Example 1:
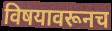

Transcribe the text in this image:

विषयावरूनच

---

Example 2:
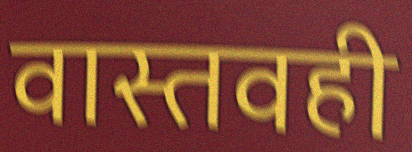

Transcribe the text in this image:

वास्तवही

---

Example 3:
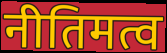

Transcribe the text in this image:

नीतिमत्व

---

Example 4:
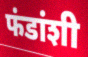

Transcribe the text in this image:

फंडांशी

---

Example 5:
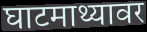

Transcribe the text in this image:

घाटमाथ्यावर